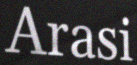
Arasi